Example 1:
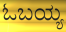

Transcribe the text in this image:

ಓಬಯ್ಯ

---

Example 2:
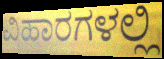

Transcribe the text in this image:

ವಿಹಾರಗಳಲ್ಲಿ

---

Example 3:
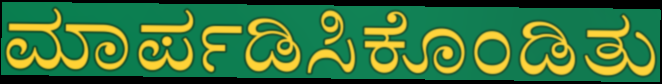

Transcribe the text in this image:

ಮಾರ್ಪಡಿಸಿಕೊಂಡಿತು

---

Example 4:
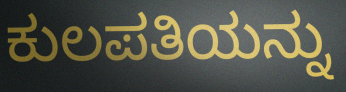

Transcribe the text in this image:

ಕುಲಪತಿಯನ್ನು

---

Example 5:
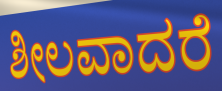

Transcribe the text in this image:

ಶೀಲವಾದರೆ